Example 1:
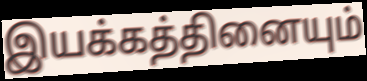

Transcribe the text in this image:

இயக்கத்தினையும்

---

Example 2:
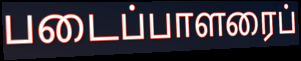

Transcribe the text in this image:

படைப்பாளரைப்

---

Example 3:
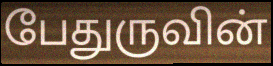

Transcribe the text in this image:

பேதுருவின்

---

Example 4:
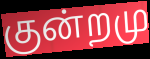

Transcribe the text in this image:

குன்றமு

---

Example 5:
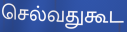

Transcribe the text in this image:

செல்வதுகூட